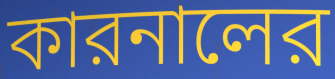
কারনালের